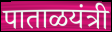
पाताळयंत्री